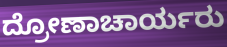
ದ್ರೋಣಾಚಾರ್ಯರು